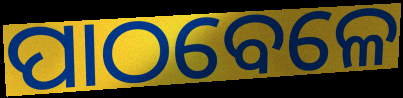
ପାଠବେଳେ